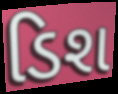
ડિશ